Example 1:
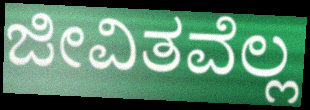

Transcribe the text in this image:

ಜೀವಿತವೆಲ್ಲ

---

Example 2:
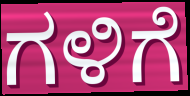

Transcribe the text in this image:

ಗಳಿಗೆ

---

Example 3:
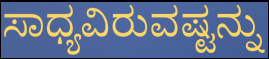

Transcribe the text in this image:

ಸಾಧ್ಯವಿರುವಷ್ಟನ್ನು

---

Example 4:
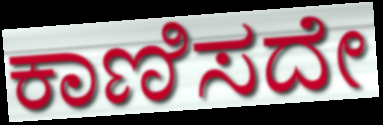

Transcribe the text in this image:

ಕಾಣಿಸದೇ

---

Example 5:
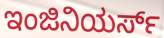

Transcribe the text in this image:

ಇಂಜಿನಿಯರ್ಸ್